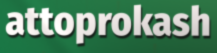
attoprokash